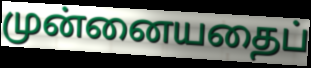
முன்னையதைப்